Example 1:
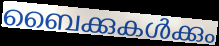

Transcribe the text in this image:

ബൈക്കുകൾക്കും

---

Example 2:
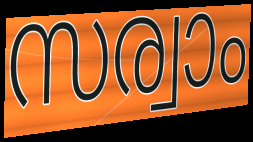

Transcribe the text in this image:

സര്വാം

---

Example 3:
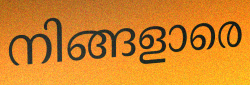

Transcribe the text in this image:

നിങ്ങളാരെ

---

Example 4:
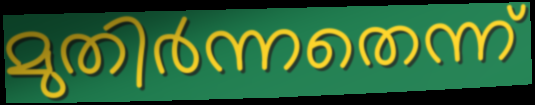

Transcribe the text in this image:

മുതിർന്നതെന്ന്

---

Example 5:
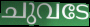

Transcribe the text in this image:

ചുവടേ